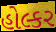
હોલ્કર